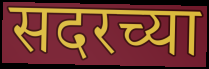
सदरच्या